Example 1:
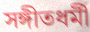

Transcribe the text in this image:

সঙ্গীতধর্মী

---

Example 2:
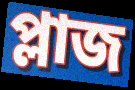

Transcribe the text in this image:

প্লাজ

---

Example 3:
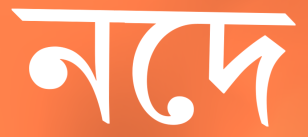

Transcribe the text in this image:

নদে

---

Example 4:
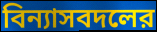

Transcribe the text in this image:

বিন্যাসবদলের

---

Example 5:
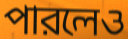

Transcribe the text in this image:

পারলেও